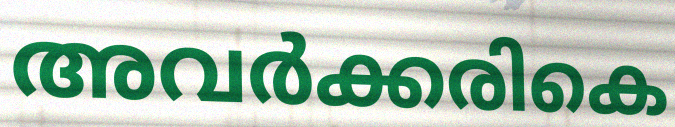
അവർക്കരികെ